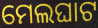
ମେଲଘାଟ